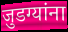
जुडग्यांना